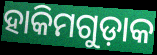
ହାକିମଗୁଡ଼ାକ